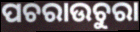
ପଚରାଉଚୁରା